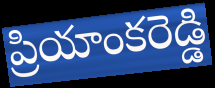
ప్రియాంకరెడ్డి